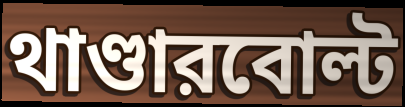
থাণ্ডারবোল্ট